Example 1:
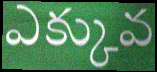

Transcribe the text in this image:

ఎక్కువ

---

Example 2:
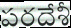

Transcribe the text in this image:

పరదేశీ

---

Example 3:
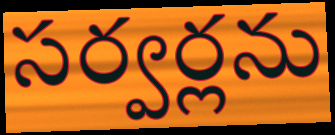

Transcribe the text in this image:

సర్వర్లను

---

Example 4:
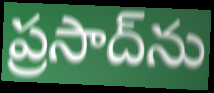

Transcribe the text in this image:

ప్రసాద్‌ను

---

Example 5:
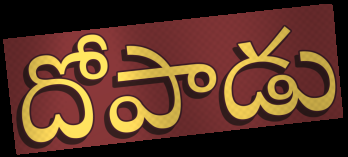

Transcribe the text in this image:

దోపాడు